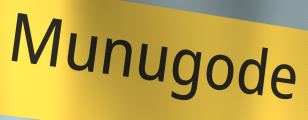
Munugode